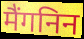
मैंगनिन